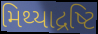
મિથ્યાદ્રષ્ટિ